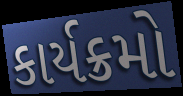
કાર્યક્રમો